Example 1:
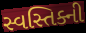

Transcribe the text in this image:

સ્વસ્તિક્ની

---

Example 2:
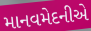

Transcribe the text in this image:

માનવમેદનીએ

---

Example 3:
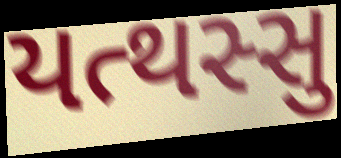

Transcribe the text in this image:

યત્થસ્સુ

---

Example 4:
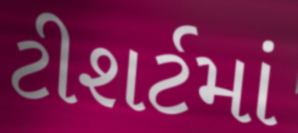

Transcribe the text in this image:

ટીશર્ટમાં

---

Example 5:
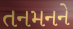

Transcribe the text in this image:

તનમનને